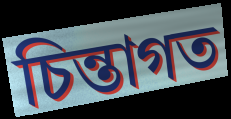
চিন্তাগত